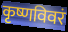
कृष्णविवरं